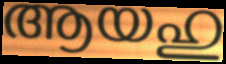
ആയഹു